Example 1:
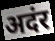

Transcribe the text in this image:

अदंर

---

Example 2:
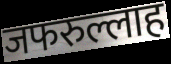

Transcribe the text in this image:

जफरुल्लाह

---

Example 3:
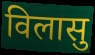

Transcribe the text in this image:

विलासु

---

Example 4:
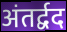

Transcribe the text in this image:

अंतर्द्वद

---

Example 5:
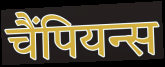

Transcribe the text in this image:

चैंपियन्स